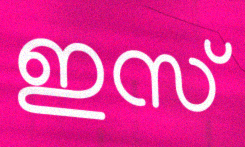
ഇസ്